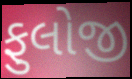
ફુલોજી